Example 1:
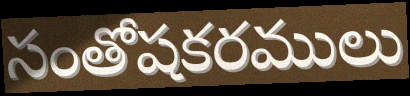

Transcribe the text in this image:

సంతోషకరములు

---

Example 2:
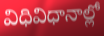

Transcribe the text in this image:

విధివిధానాల్లో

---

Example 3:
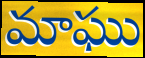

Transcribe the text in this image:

మాఘు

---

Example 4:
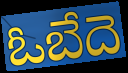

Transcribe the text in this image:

ఓబేదె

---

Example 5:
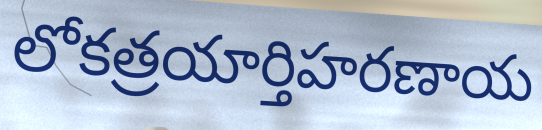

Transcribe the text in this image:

లోకత్రయార్తిహరణాయ